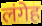
लंगेह